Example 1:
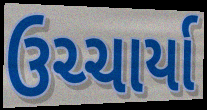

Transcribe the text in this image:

ઉચ્ચાર્યા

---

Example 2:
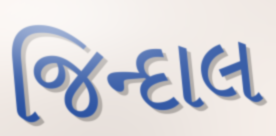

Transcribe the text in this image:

જિન્દાલ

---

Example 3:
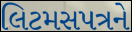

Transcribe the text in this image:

લિટમસપત્રને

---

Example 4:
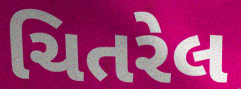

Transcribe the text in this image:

ચિતરેલ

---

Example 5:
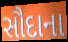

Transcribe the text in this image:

સૌદાના